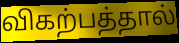
விகற்பத்தால்